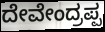
ದೇವೇಂದ್ರಪ್ಪ